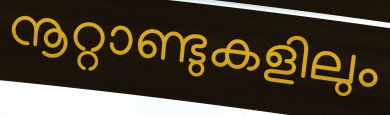
നൂറ്റാണ്ടുകളിലും